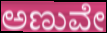
ಅಣುವೇ